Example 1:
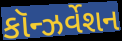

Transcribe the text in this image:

કૉન્ઝર્વેશન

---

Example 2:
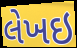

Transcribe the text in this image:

લેખઇ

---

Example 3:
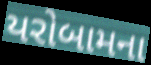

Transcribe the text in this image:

યરોબામના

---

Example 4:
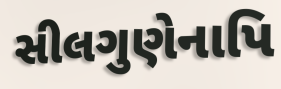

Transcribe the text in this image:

સીલગુણેનાપિ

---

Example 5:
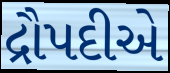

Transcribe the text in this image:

દ્રૌપદીએ